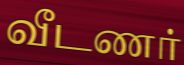
வீடணர்